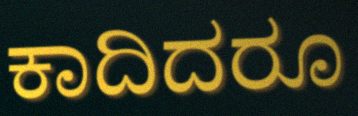
ಕಾದಿದರೂ